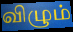
விழும்